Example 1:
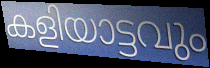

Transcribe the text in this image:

കളിയാട്ടവും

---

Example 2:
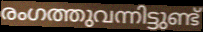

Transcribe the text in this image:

രംഗത്തുവന്നിട്ടുണ്ട്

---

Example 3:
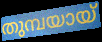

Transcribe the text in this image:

തുമ്പയായ്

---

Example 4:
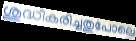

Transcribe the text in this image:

ശുദ്ധീകരിച്ചതുപോലെ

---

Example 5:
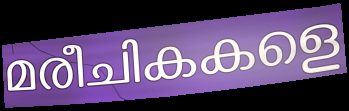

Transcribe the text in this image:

മരീചികകളെ